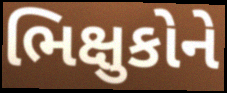
ભિક્ષુકોને